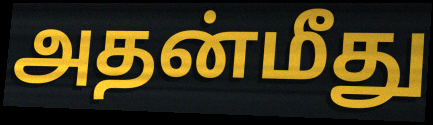
அதன்மீது